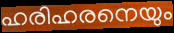
ഹരിഹരനെയും